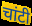
चांटी